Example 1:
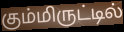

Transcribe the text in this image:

கும்மிருட்டில்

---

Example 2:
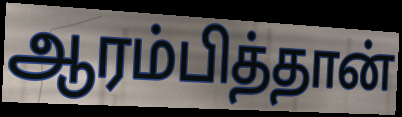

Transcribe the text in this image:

ஆரம்பித்தான்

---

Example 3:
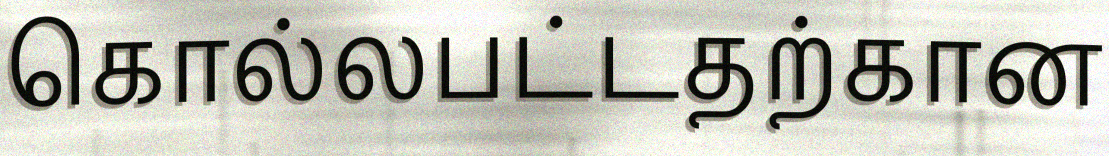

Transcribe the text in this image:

கொல்லபட்டதற்கான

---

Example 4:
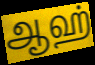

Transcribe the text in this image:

ஆஹ்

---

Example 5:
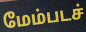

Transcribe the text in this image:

மேம்படச்